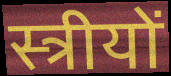
स्त्रीयों